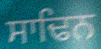
ਸਾਢਿਨ